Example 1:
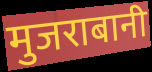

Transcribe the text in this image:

मुजराबानी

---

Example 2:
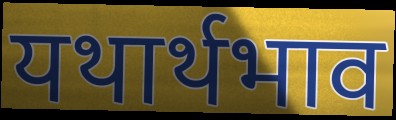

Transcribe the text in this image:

यथार्थभाव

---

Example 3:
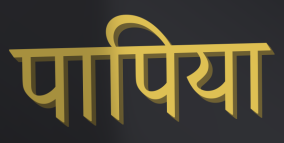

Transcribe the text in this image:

पापिया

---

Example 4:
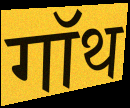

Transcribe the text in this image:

गॉथ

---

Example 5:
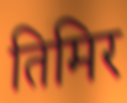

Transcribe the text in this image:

तिमिर